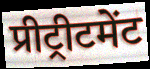
प्रीट्रीटमेंट